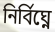
নিৰ্বিঘ্নে